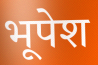
भूपेश